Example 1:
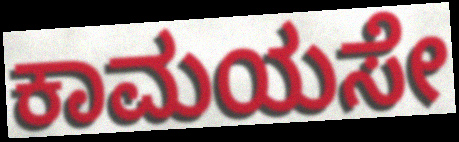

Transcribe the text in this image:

ಕಾಮಯಸೇ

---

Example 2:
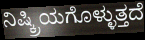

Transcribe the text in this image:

ನಿಷ್ಕ್ರಿಯಗೊಳ್ಳುತ್ತದೆ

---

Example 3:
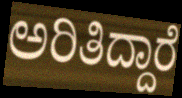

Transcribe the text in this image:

ಅರಿತಿದ್ದಾರೆ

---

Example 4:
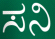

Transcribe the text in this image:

ಸನಿ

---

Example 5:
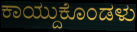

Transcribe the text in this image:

ಕಾಯ್ದುಕೊಂಡಳು